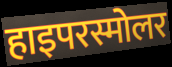
हाइपरस्मोलर